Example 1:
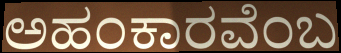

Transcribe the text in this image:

ಅಹಂಕಾರವೆಂಬ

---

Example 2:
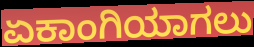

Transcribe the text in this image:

ಏಕಾಂಗಿಯಾಗಲು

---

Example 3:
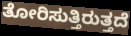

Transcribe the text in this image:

ತೋರಿಸುತ್ತಿರುತ್ತದೆ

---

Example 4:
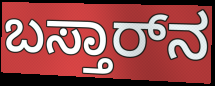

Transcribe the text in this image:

ಬಸ್ತಾರ್‌ನ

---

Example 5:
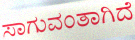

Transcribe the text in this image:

ಸಾಗುವಂತಾಗಿದೆ